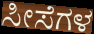
ಸೀಸೆಗಳ